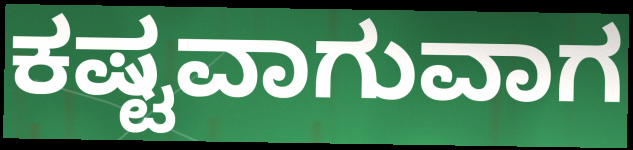
ಕಷ್ಟವಾಗುವಾಗ